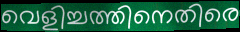
വെളിച്ചത്തിനെതിരെ